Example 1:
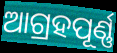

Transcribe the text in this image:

ଆଗ୍ରହପୂର୍ଣ୍ଣ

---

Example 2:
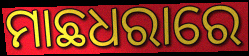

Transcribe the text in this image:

ମାଛଧରାରେ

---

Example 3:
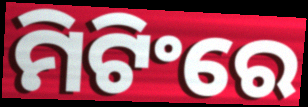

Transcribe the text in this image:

ମିଟିଂରେ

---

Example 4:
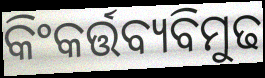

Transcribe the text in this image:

କିଂକର୍ତ୍ତବ୍ଯବିମୁଢ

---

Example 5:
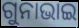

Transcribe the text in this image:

ଗୁନାଭାଇ